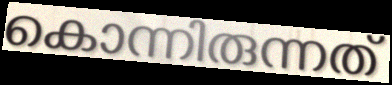
കൊന്നിരുന്നത്